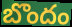
బొందం